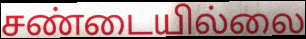
சண்டையில்லை